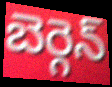
బెర్గెన్